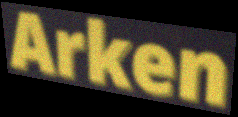
Arken